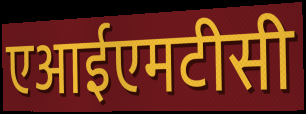
एआईएमटीसी